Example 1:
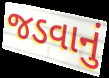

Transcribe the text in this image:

જડવાનું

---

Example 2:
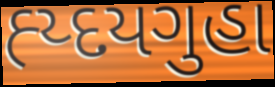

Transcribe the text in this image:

હ્ય્દયગુહા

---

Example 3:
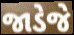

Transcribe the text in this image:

જાડેજે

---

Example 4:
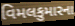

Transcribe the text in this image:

વિમલકુમારના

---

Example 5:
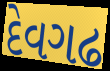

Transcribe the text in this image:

દેવગઢ